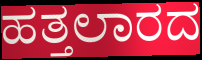
ಹತ್ತಲಾರದ